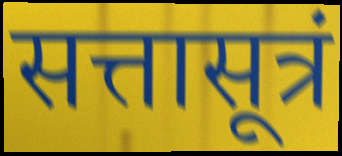
सत्तासूत्रं